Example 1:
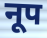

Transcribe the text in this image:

नूप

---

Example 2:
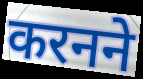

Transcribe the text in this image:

करनने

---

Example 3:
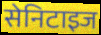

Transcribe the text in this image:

सेनिटाइज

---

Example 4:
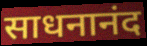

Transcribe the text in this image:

साधनानंद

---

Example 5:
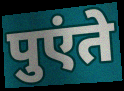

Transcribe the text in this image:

पुएंते